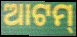
ଆଟମ୍